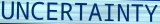
UNCERTAINTY